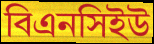
বিএনসিইউ